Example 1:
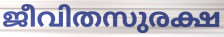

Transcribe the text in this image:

ജീവിതസുരക്ഷ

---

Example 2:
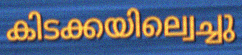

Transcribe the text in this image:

കിടക്കയില്വെച്ചു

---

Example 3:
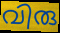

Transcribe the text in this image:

വിരു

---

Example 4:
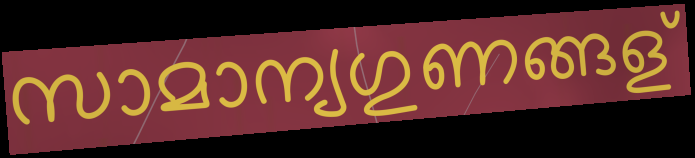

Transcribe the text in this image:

സാമാന്യഗുണങ്ങള്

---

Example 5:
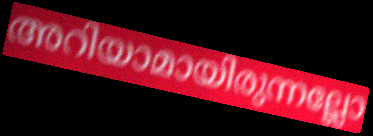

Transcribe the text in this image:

അറിയാമായിരുന്നല്ലോ